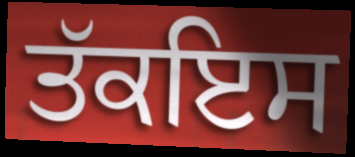
ਤੱਕਇਸ